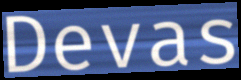
Devas